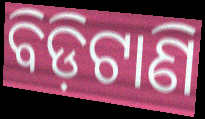
ବିଡ଼ିଟାଣି